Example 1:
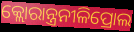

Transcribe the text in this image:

କ୍ଲୋରାନ୍ତ୍ରନୀଳିପ୍ରୋଲ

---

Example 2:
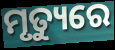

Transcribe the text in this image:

ମୃତ୍ୟୁରେ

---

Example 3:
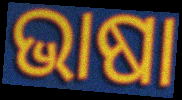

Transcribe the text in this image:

ଭାଷା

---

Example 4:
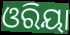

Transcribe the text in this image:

ଓରିୟା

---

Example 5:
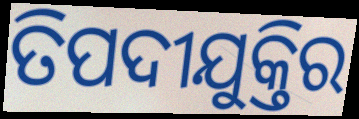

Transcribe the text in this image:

ତିପଦୀଯୁକ୍ତିର